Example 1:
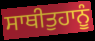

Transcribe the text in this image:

ਸਾਥੀਤੁਹਾਨੂੰ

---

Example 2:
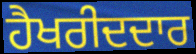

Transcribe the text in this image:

ਹੈਖਰੀਦਦਾਰ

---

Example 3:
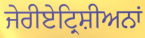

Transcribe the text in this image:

ਜੇਰੀਏਟ੍ਰਿਸ਼ੀਅਨਾਂ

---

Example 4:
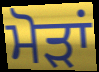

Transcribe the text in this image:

ਮੋੜਾਂ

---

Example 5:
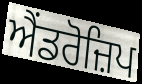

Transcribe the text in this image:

ਐਂਡਰੋਜ਼ਿਪ